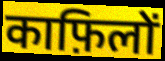
काफ़िलों